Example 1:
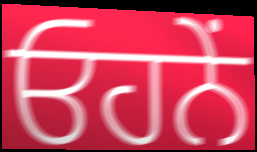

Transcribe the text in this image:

ਓਹਨੇੰ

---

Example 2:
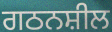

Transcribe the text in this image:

ਗਠਨਸ਼ੀਲ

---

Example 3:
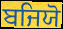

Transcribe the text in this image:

ਬਜਿਯੋ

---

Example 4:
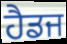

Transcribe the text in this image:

ਹੈਡਜ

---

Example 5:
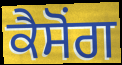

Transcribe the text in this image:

ਕੈਸੋਂਗ